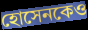
হোসেনকেও